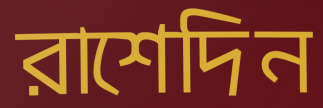
রাশেদিন